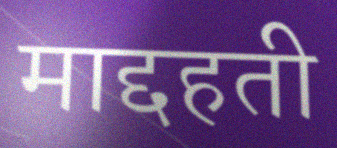
माद्दहती